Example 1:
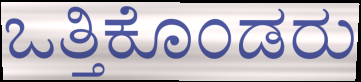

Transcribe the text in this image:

ಒತ್ತಿಕೊಂಡರು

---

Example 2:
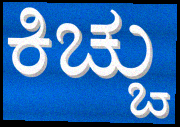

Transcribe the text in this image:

ಕಿಚ್ಚು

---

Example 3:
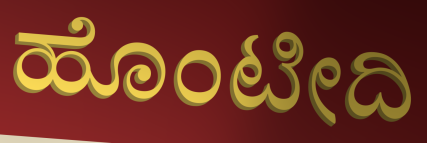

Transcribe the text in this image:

ಹೊಂಟೀದಿ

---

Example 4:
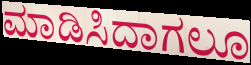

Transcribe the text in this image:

ಮಾಡಿಸಿದಾಗಲೂ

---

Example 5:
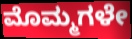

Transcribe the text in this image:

ಮೊಮ್ಮಗಳೇ